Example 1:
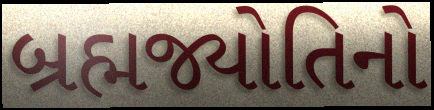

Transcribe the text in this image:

બ્રહ્મજ્યોતિનો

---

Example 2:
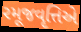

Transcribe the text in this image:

રમૂજવૃત્તિએ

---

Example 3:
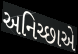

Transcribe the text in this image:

અનિચ્છાએ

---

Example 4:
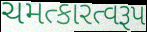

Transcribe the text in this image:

ચમત્કારત્વરૂપ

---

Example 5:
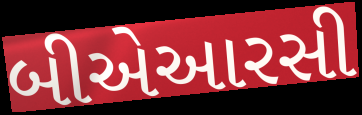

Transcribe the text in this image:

બીએઆરસી